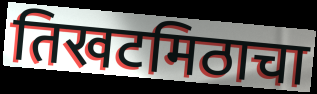
तिखटमिठाचा